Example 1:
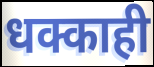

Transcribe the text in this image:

धक्काही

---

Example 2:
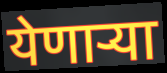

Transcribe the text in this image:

येणाऱ्या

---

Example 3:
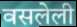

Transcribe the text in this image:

वसलेली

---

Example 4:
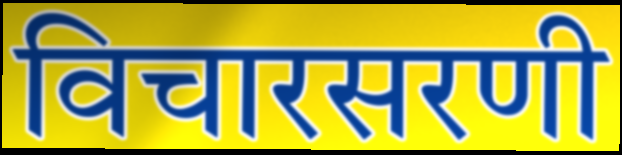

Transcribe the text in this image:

विचारसरणी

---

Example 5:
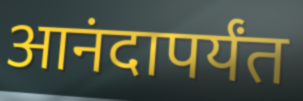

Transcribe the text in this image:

आनंदापर्यंत